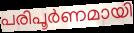
പരിപൂർണമായി